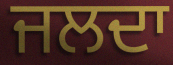
ਜਲਦਾ